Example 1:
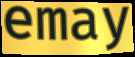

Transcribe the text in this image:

emay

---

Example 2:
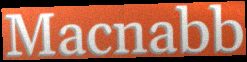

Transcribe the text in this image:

Macnabb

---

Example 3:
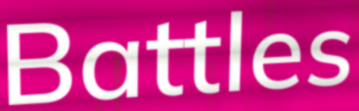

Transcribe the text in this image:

Battles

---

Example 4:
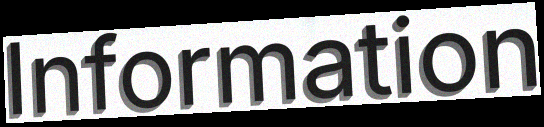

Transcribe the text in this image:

Information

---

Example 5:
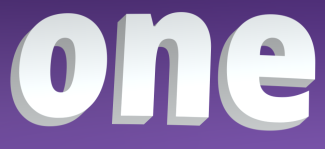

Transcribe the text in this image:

one